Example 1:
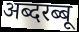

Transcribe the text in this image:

अब्दरब्बू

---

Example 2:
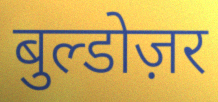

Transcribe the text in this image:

बुल्डोज़र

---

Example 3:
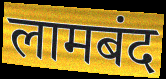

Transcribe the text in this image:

लामबंद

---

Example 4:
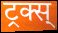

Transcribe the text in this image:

ट्रक्स्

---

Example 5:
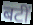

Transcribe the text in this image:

बटीं